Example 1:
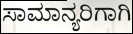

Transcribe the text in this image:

ಸಾಮಾನ್ಯರಿಗಾಗಿ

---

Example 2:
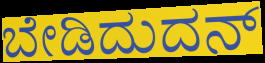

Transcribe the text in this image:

ಬೇಡಿದುದನ್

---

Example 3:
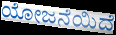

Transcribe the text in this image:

ಯೋಜನೆಯಿದೆ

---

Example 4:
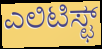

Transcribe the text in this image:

ಎಲಿಟಿಸ್ಟ್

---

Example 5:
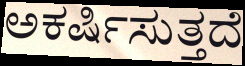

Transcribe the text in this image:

ಅಕರ್ಷಿಸುತ್ತದೆ